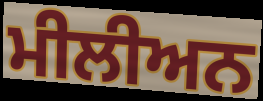
ਮੀਲੀਅਨ